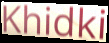
Khidki